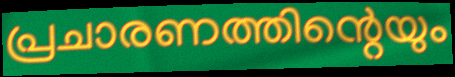
പ്രചാരണത്തിന്റെയും